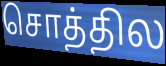
சொத்தில